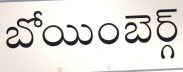
బోయింబెర్గ్